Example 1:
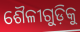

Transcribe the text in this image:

ଶୈଳୀଗୁଡ଼ିକୁ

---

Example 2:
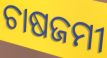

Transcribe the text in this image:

ଚାଷଜମୀ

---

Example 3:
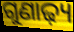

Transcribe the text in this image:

ଗୁଣାଢ଼୍ୟ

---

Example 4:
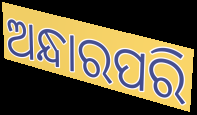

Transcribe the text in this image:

ଅନ୍ଧାରପରି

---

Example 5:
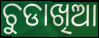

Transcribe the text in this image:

ଚୁଡାଖିଆ